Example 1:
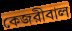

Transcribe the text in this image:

কেজরীবাল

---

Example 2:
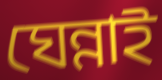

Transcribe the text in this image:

ঘেন্নাই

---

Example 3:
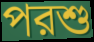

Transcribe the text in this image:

পরশু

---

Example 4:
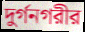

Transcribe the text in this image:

দুর্গনগরীর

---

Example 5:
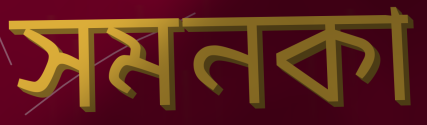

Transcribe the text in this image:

সমনকা